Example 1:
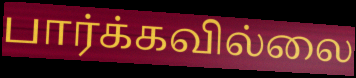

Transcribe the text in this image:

பார்க்கவில்லை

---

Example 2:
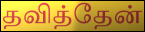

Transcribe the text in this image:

தவித்தேன்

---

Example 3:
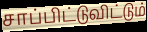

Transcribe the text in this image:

சாப்பிட்டுவிட்டும்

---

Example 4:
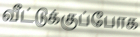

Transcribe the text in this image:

வீட்டுக்குப்போக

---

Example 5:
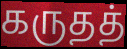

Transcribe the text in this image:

கருதத்